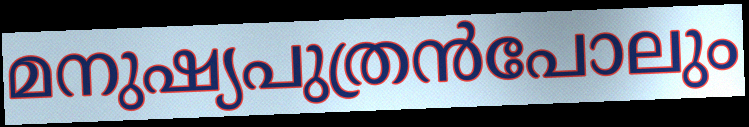
മനുഷ്യപുത്രൻപോലും